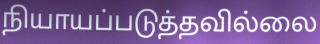
நியாயப்படுத்தவில்லை